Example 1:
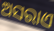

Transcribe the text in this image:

ଅସରାଏ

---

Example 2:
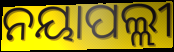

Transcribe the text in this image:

ନୟାପଲ୍ଲୀ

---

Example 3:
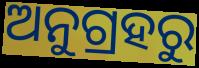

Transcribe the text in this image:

ଅନୁଗ୍ରହରୁ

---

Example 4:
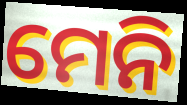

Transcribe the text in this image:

ମେନି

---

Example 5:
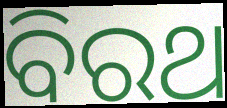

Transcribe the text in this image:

ବିରଥ